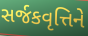
સર્જકવૃત્તિને